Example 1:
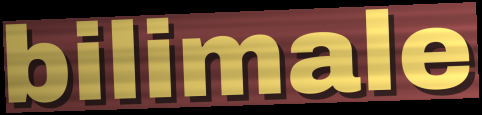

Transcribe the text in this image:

bilimale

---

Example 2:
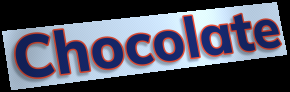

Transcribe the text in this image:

Chocolate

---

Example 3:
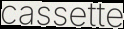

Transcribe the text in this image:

cassette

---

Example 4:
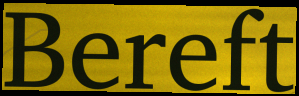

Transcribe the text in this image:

Bereft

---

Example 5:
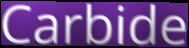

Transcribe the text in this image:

Carbide